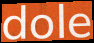
dole